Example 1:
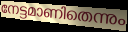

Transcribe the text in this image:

നേട്ടമാണിതെന്നും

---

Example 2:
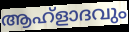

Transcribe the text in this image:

ആഹ്ളാദവും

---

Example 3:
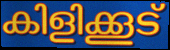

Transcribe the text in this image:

കിളിക്കൂട്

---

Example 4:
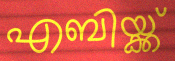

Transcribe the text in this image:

എബിയ്ക്ക്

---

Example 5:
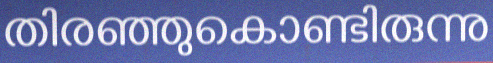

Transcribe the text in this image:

തിരഞ്ഞുകൊണ്ടിരുന്നു